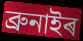
ব্ৰুনাইৰ